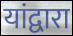
यांद्वारा